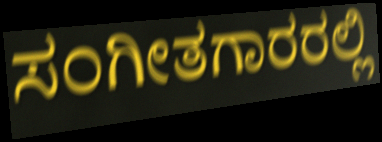
ಸಂಗೀತಗಾರರಲ್ಲಿ